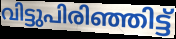
വിട്ടുപിരിഞ്ഞിട്ട്